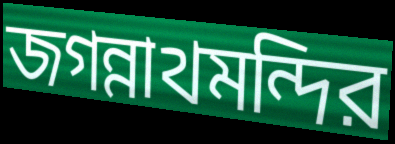
জগন্নাথমন্দির